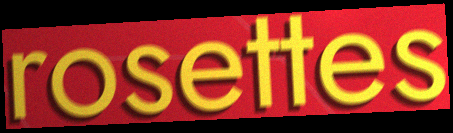
rosettes